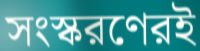
সংস্করণেরই